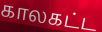
காலகட்ட